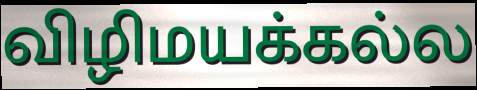
விழிமயக்கல்ல